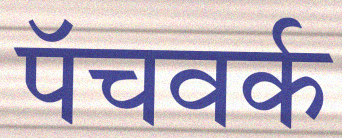
पॅचवर्क